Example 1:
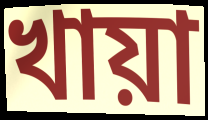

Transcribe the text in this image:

খায়া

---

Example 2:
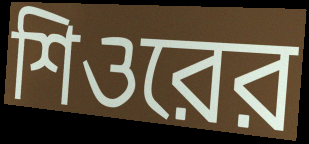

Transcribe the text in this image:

শিওরের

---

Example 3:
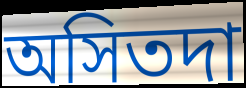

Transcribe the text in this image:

অসিতদা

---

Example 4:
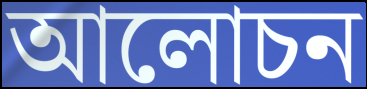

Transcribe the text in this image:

আলোচন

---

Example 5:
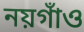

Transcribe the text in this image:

নয়গাঁও